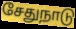
சேதுநாடு